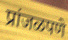
प्रांजळपणे